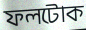
ফলটোক